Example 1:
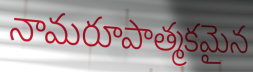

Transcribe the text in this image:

నామరూపాత్మకమైన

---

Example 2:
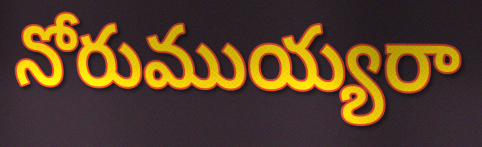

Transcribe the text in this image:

నోరుముయ్యరా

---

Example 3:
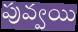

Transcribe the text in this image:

పువ్వయి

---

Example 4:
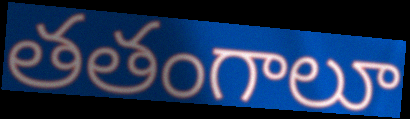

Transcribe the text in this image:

తతంగాలూ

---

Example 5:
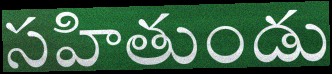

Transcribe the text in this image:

సహితుండు